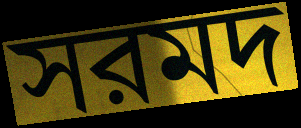
সরমদ